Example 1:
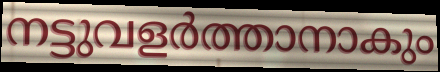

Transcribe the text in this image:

നട്ടുവളർത്താനാകും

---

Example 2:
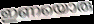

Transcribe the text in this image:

ഇണയൊരു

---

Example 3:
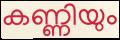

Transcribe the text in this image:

കണ്ണിയും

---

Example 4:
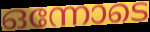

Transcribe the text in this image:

ഒന്നോടെ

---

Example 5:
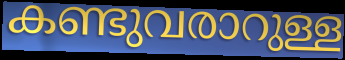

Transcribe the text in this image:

കണ്ടുവരാറുള്ള